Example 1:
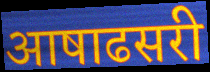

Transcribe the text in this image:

आषाढसरी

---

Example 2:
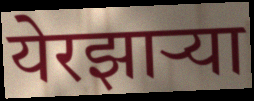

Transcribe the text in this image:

येरझार्‍या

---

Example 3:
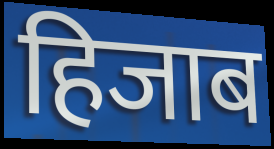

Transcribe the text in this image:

हिजाब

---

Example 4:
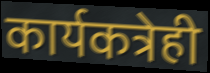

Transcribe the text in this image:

कार्यकत्रेही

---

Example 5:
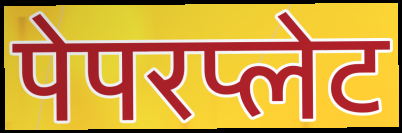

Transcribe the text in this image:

पेपरप्लेट